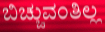
ಬಿಚ್ಚುವಂತಿಲ್ಲ